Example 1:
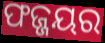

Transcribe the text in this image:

ଫଜ୍ଜୟର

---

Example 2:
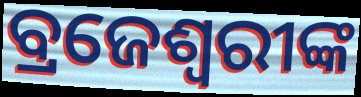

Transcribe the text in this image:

ବ୍ରଜେଶ୍ୱରୀଙ୍କ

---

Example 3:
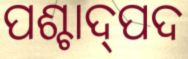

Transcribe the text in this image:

ପଶ୍ଚାଦ୍‍ପଦ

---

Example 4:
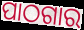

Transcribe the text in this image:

ପାଠଗାର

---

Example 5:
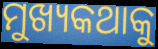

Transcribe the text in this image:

ମୁଖ୍ୟକଥାକୁ